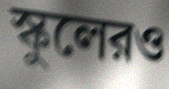
স্কুলেরও